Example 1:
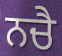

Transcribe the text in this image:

ਨਚੈ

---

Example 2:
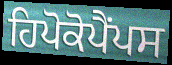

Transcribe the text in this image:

ਹਿਪੋਕੋਪੈਂਪਸ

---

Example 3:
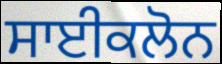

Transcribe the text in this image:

ਸਾਈਕਲੋਨ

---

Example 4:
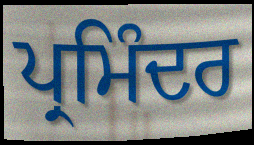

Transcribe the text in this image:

ਪ੍ਰਮਿੰਦਰ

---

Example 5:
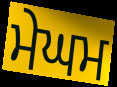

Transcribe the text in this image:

ਮੇਘਮ